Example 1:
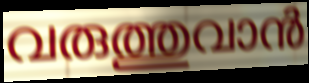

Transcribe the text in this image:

വരുത്തുവാൻ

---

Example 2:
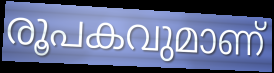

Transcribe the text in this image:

രൂപകവുമാണ്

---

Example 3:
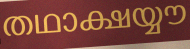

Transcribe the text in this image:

തഥാക്ഷയ്യൗ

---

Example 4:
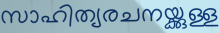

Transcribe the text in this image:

സാഹിത്യരചനയ്ക്കുള്ള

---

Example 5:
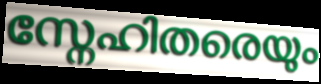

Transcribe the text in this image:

സ്നേഹിതരെയും